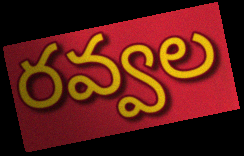
రవ్వల